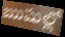
ఋషుల్లో